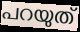
പറയുത്